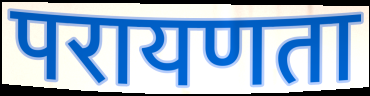
परायणता